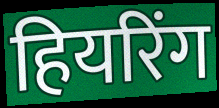
हियरिंग